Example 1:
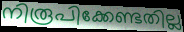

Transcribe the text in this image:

നിരൂപിക്കേണ്ടതില്ല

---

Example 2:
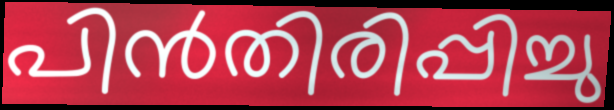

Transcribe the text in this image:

പിൻതിരിപ്പിച്ചു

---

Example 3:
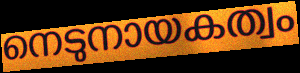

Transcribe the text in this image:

നെടുനായകത്വം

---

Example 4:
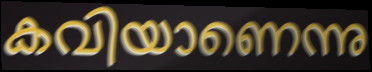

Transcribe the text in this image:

കവിയാണെന്നു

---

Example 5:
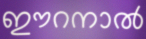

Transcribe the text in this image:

ഈറനാൽ